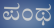
ಪಂಥ